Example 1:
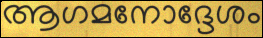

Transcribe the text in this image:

ആഗമനോദ്ദേശം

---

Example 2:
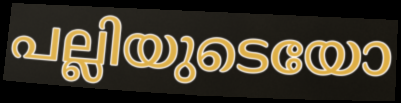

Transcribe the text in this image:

പല്ലിയുടെയോ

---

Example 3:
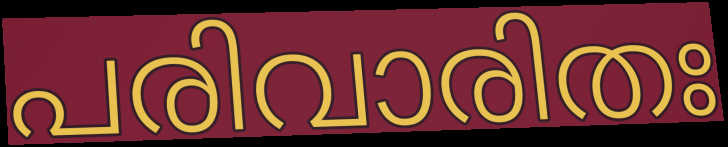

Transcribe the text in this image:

പരിവാരിതഃ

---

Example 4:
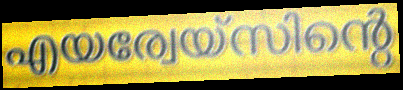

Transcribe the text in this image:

എയര്വേയ്സിന്റെ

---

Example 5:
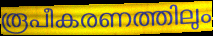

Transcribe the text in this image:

രൂപീകരണത്തിലും